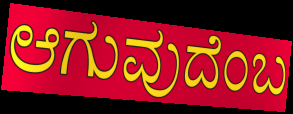
ಆಗುವುದೆಂಬ